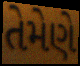
તેમેણે